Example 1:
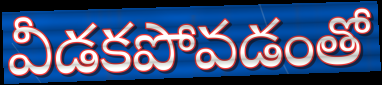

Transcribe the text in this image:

వీడకపోవడంతో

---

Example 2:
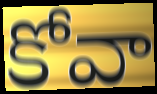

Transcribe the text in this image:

కోవా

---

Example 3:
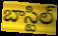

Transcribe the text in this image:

బాస్టిల్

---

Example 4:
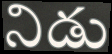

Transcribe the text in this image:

నిడు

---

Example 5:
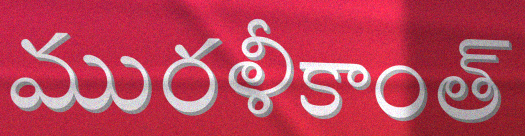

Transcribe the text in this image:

మురళీకాంత్